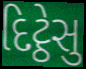
દિટ્ઠેસુ